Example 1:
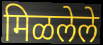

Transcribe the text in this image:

मिळलेले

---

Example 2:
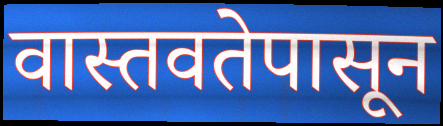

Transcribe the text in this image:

वास्तवतेपासून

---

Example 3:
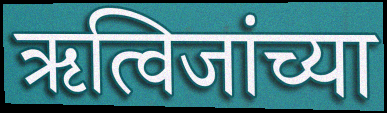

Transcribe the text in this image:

ऋत्विजांच्या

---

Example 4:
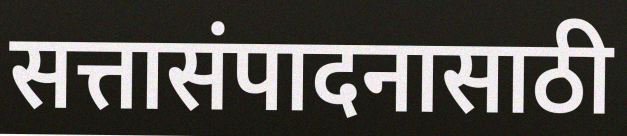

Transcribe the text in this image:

सत्तासंपादनासाठी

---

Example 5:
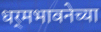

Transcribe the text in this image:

धर्मभावनेच्या